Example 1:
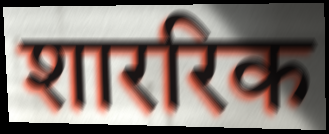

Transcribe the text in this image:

शाररिक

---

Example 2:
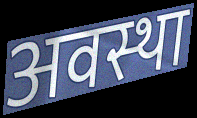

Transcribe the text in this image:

अवस्था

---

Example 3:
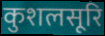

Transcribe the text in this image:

कुशलसूरि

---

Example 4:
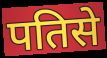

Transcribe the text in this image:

पतिसे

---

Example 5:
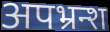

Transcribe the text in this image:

अपभ्रन्श